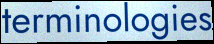
terminologies